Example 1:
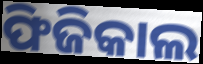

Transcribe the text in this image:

ଫିଜିକାଲ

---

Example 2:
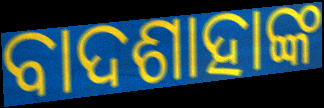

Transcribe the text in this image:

ବାଦଶାହାଙ୍କ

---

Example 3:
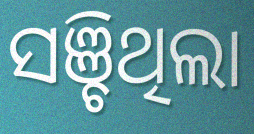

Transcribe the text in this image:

ସଞ୍ଚିଥିଲା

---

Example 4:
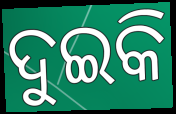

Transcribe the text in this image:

ଦୁଇକି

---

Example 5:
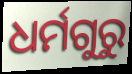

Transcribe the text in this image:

ଧର୍ମଗୁରୁ